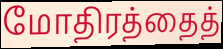
மோதிரத்தைத்